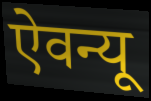
ऐवन्यू